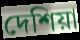
দেশিয়া